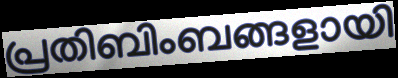
പ്രതിബിംബങ്ങളായി